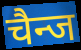
चैन्ज